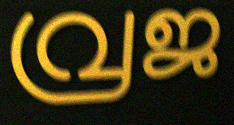
വ്രജ